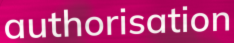
authorisation